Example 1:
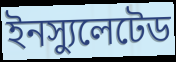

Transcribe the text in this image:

ইনস্যুলেটেড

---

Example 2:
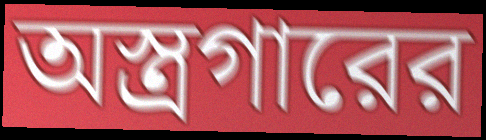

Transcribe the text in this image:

অস্ত্রগারের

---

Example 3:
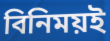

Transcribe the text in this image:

বিনিময়ই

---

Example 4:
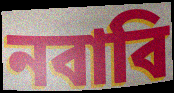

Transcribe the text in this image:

নবাবি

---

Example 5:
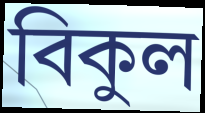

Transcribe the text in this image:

বিকুল